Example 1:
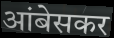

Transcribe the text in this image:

आंबेसकर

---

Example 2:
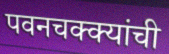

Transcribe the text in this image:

पवनचक्क्यांची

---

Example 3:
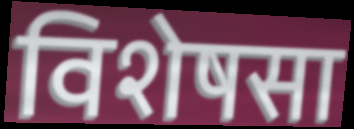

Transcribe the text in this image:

विशेषसा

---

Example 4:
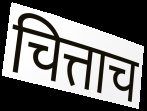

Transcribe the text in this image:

चित्ताच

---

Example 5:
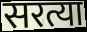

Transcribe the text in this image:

सरत्या